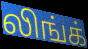
லிங்க்